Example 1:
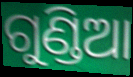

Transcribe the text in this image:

ଗୁଣ୍ଡିଆ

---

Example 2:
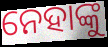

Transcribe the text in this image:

ନେହାଙ୍କୁ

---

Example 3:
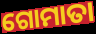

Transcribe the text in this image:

ଗୋମାତା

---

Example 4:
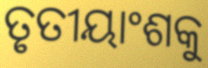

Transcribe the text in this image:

ତୃତୀୟାଂଶକୁ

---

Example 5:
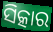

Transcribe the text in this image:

ସିତ୍କାର